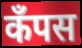
कॅंपस